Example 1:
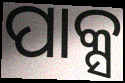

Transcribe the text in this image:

ପାକ୍ସ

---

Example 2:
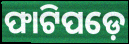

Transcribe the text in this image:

ଫାଟିପଡ଼େ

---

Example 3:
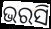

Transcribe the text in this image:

ଭରସି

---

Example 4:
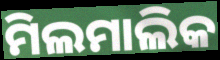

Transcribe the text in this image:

ମିଲମାଲିକ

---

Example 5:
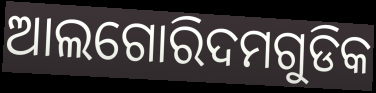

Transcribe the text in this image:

ଆଲଗୋରିଦମଗୁଡିକ